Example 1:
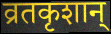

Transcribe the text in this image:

व्रतकृशान्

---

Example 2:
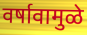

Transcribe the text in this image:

वर्षावामुळे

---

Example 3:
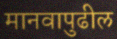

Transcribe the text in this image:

मानवापुढील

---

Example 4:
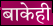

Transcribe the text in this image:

बाकेही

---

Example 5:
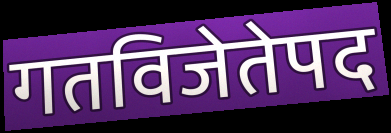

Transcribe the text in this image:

गतविजेतेपद